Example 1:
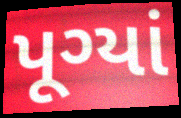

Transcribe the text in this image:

પૂગ્યાં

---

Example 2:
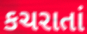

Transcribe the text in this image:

કચરાતાં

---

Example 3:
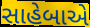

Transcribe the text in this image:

સાહેબાએ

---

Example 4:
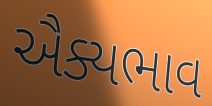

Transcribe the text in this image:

ઐક્યભાવ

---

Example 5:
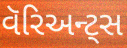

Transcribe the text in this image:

વૅરિઅન્ટ્સ